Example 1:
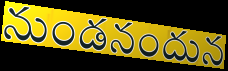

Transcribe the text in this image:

నుండనందున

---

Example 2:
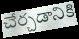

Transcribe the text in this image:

చేర్చడానికి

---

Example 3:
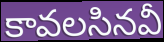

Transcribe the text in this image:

కావలసినవీ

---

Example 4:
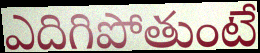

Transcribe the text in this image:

ఎదిగిపోతుంటే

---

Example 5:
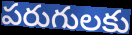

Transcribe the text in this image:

పరుగులకు